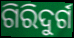
ଗିରିଦୁର୍ଗ